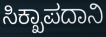
ಸಿಕ್ಖಾಪದಾನಿ